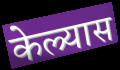
केल्यास